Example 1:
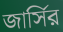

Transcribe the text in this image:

জার্সির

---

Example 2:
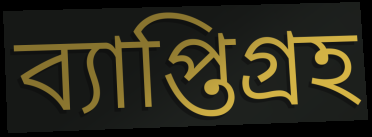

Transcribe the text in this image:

ব্যাপ্তিগ্রহ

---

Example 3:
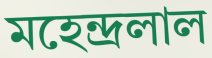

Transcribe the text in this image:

মহেন্দ্রলাল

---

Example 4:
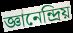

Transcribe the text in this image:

জ্ঞানেন্দ্রিয়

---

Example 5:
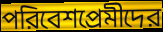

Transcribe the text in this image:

পরিবেশপ্রেমীদের